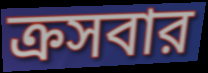
ক্রসবার